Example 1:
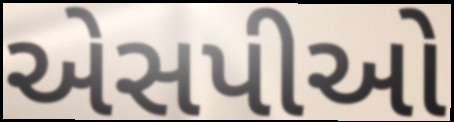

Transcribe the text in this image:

એસપીઓ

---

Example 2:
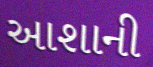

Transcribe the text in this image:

આશાની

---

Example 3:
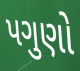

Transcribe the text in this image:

પગુણો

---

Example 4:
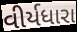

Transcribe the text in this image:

વીર્યધારા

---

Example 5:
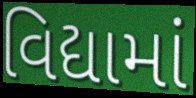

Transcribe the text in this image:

વિદ્યામાં